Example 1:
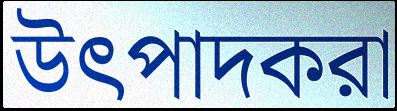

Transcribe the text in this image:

উৎপাদকরা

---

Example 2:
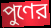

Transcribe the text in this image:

পুণের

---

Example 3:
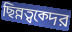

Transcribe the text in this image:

ছিন্নত্বক্দের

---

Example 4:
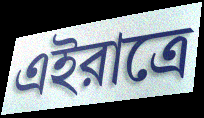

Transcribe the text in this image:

এইরাত্রে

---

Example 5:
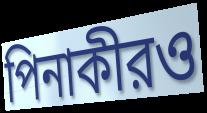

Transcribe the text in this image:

পিনাকীরও